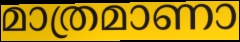
മാത്രമാണാ